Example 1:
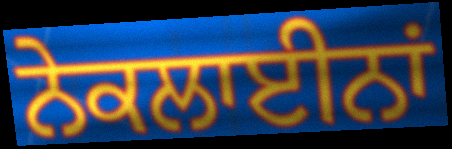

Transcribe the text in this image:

ਨੇਕਲਾਈਨਾਂ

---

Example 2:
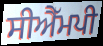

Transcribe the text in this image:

ਸੀਐੱਮਪੀ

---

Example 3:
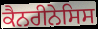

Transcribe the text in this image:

ਕੈਨਰੀਨੇਸਿਸ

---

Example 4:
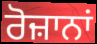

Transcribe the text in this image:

ਰੋਜ਼ਾਨਾਂ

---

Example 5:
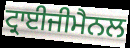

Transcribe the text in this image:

ਟ੍ਰਾਈਜੀਮੈਨਲ